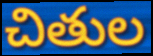
చితుల